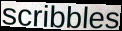
scribbles